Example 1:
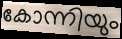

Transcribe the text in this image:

കോന്നിയും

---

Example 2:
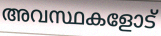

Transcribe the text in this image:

അവസ്ഥകളോട്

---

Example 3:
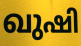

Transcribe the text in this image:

ഖുഷി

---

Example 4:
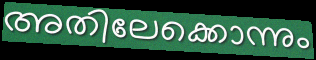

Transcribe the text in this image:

അതിലേക്കൊന്നും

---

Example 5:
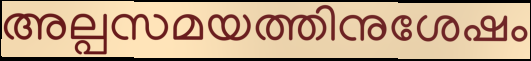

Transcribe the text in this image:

അല്പസമയത്തിനുശേഷം